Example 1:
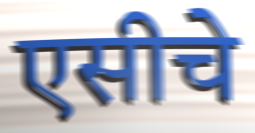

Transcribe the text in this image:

एसीचे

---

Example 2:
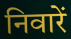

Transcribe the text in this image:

निवारें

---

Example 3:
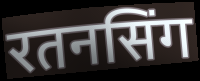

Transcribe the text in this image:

रतनसिंग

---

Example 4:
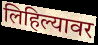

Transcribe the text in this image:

लिहिल्यावर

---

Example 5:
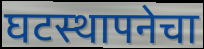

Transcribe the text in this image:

घटस्थापनेचा